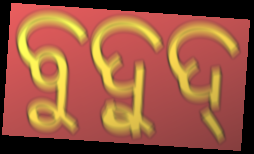
ବୁଦ୍ବୁଦ୍